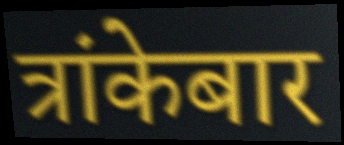
त्रांकेबार